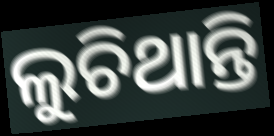
ଲୁଚିଥାନ୍ତି